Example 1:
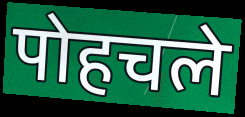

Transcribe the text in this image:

पोहचले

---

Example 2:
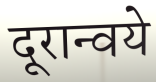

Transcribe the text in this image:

दूरान्वये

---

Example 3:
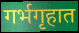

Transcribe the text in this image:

गर्भगृहात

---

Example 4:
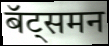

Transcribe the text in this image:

बॅट्समन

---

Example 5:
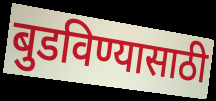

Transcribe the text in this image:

बुडविण्यासाठी